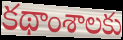
కథాంశాలకు